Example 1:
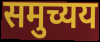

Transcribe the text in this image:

समुच्यय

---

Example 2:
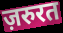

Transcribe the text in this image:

ज़रुरत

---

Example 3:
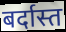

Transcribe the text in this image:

बर्दास्त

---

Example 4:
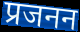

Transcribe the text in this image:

प्रजनन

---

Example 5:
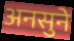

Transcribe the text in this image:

अनसुने